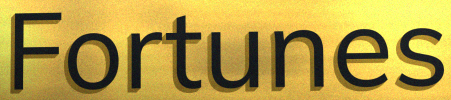
Fortunes